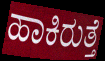
ಹಾಕಿರುತ್ತೆ